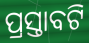
ପ୍ରସ୍ତାବଟି